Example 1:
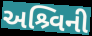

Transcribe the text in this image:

અશ્ર્વિની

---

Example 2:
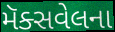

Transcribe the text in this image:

મૅક્સવેલના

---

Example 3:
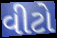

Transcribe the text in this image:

વીટો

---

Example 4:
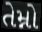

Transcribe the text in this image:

તેમ્નો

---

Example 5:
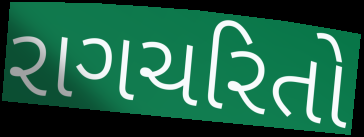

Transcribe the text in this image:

રાગચરિતો